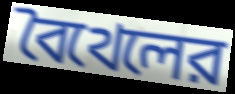
বৈথেলের